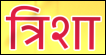
त्रिशा